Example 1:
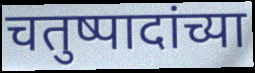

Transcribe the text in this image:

चतुष्पादांच्या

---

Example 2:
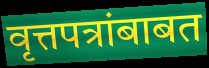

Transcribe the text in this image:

वृत्तपत्रांबाबत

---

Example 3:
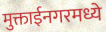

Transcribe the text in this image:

मुक्ताईनगरमध्ये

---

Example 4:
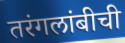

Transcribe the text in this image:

तरंगलांबीची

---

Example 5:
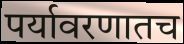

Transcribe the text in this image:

पर्यावरणातच